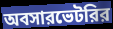
অবসারভেটরির